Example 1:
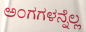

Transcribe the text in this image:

ಅಂಗಗಳನ್ನೆಲ್ಲ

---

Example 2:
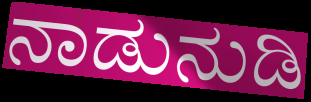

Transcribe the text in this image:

ನಾಡುನುಡಿ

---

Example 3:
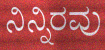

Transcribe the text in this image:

ನಿನ್ನಿರವು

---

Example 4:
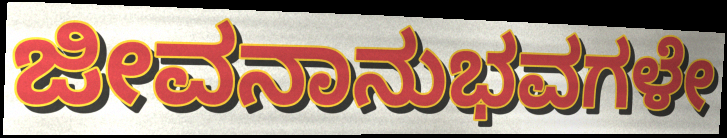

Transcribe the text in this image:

ಜೀವನಾನುಭವಗಳೇ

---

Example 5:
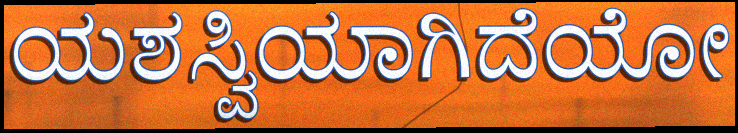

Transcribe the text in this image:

ಯಶಸ್ವಿಯಾಗಿದೆಯೋ